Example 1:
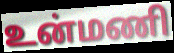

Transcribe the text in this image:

உன்மணி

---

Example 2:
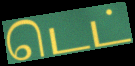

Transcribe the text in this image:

டெட்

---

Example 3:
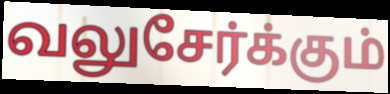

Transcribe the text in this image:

வலுசேர்க்கும்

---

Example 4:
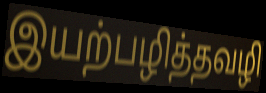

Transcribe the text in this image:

இயற்பழித்தவழி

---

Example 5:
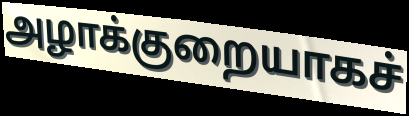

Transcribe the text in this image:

அழாக்குறையாகச்